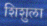
शिशुला